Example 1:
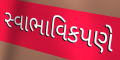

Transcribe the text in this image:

સ્વાભાવિકપણે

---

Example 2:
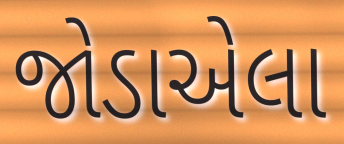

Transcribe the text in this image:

જોડાએલા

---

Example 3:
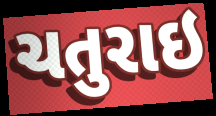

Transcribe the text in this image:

ચતુરાઇ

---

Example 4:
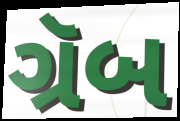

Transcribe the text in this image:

ગ્રૅબ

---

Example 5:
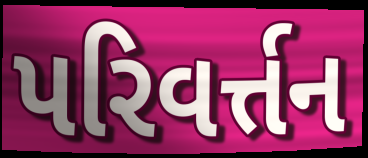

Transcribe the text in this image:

પરિવર્ત્તન